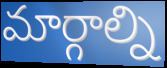
మార్గాల్ని